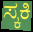
ಸ್ಕಕಿ